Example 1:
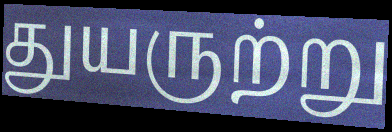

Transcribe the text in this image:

துயருற்று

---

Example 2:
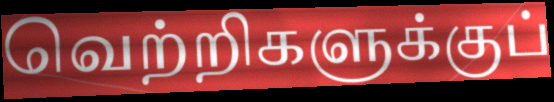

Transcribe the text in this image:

வெற்றிகளுக்குப்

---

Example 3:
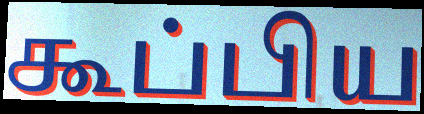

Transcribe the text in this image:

கூப்பிய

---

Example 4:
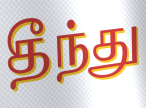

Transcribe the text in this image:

தீந்து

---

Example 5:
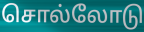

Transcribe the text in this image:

சொல்லோடு